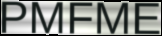
PMFME